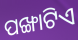
ପଙ୍ଖାଟିଏ